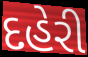
દહેરી